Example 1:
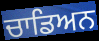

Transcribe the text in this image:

ਚਾਡਿਅਨ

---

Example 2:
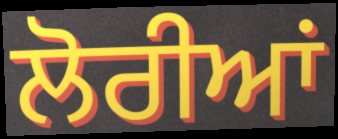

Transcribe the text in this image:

ਲੋਰੀਆਂ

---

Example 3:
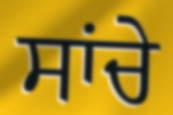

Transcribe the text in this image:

ਸਾਂਚੇ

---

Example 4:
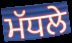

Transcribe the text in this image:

ਮੱਧਲੇ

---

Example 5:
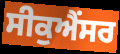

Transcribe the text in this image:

ਸੀਕੁਐਂਸਰ